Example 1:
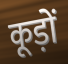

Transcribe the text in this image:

कूड़ों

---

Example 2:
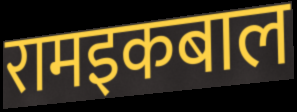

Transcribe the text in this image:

रामइकबाल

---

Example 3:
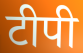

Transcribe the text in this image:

टीपी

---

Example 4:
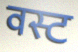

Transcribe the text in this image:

वस्ट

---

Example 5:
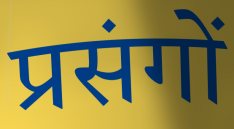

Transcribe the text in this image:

प्रसंगों